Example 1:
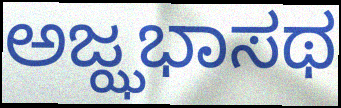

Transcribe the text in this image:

ಅಜ್ಝಭಾಸಥ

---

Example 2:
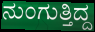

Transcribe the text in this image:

ನುಂಗುತ್ತಿದ್ದ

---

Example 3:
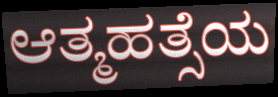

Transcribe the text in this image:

ಆತ್ಮಹತ್ಸೆಯ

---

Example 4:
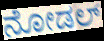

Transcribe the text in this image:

ನೋಡಲ್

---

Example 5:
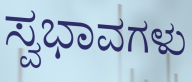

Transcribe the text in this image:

ಸ್ವಭಾವಗಳು